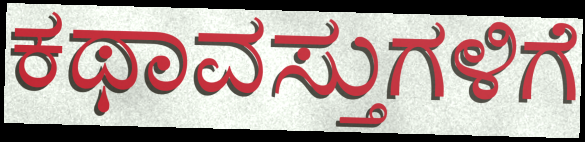
ಕಥಾವಸ್ತುಗಳಿಗೆ